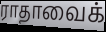
ராதாவைக்